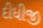
દીધીજી